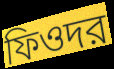
ফিওদর